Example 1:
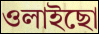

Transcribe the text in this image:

ওলাইছো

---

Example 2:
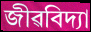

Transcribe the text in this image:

জীৱবিদ্যা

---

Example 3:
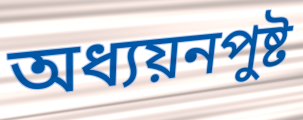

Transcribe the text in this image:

অধ্যয়নপুষ্ট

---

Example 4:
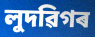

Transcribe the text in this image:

লুদৱিগৰ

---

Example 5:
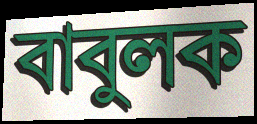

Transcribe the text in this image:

বাবুলক